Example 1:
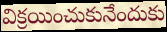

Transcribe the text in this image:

విక్రయించుకునేందుకు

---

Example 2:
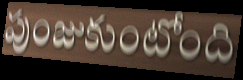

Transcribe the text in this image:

పుంజుకుంటోంది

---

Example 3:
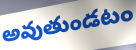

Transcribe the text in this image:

అవుతుండటం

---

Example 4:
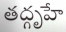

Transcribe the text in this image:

తద్గృహే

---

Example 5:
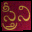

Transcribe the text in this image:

స్త్రీని